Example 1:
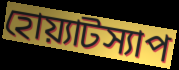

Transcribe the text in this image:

হোয়্যাটস্যাপ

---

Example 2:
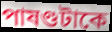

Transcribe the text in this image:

পাষণ্ডটাকে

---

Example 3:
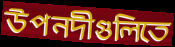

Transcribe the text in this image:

উপনদীগুলিতে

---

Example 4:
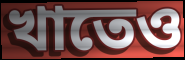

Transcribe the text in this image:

খাতেও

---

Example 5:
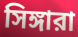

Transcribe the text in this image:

সিঙ্গারা